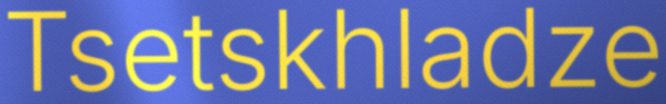
Tsetskhladze